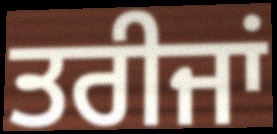
ਤਰੀਜਾਂ